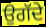
ਉਗੱਦੇ